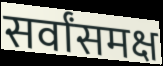
सर्वांसमक्ष